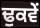
ਢੁਕਵੇਂ